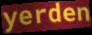
yerden